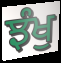
ਝੰਖੁ